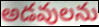
అడవులను